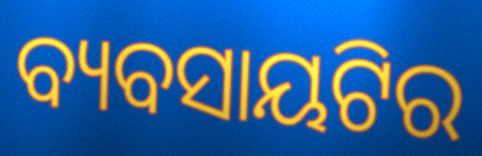
ବ୍ୟବସାୟଟିର